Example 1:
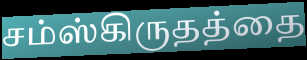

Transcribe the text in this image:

சம்ஸ்கிருதத்தை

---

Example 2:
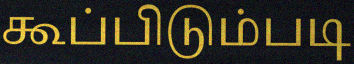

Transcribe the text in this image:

கூப்பிடும்படி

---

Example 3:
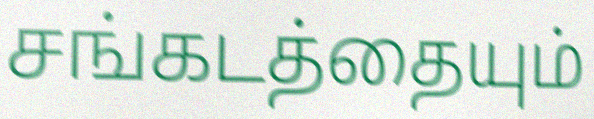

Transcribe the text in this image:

சங்கடத்தையும்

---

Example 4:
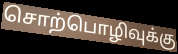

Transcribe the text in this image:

சொற்பொழிவுக்கு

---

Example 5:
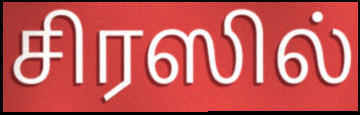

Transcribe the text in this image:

சிரஸில்